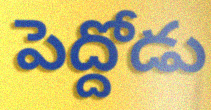
పెద్దోడు